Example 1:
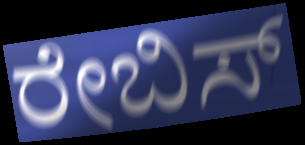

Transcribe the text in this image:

ರೇಬಿಸ್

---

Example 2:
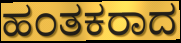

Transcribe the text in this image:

ಹಂತಕರಾದ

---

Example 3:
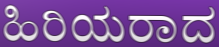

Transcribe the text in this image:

ಹಿರಿಯರಾದ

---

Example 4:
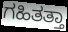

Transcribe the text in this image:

ಗಹಿತತ್ತಾ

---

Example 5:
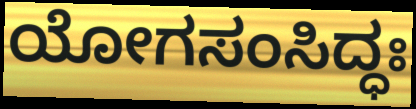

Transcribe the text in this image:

ಯೋಗಸಂಸಿದ್ಧಃ